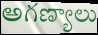
అగణ్యాలు